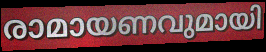
രാമായണവുമായി